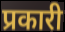
प्रकारी